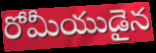
రోమీయుడైన